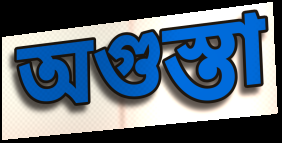
অগুস্তা